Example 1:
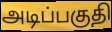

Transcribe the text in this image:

அடிப்பகுதி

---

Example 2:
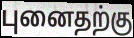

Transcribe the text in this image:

புனைதற்கு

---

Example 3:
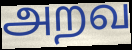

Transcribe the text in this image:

அறவ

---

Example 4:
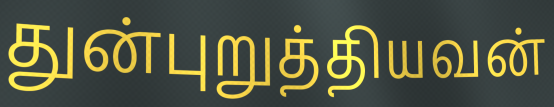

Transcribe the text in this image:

துன்புறுத்தியவன்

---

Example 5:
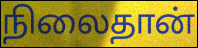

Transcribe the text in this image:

நிலைதான்